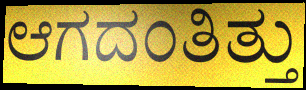
ಆಗದಂತಿತ್ತು